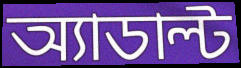
অ্যাডাল্ট